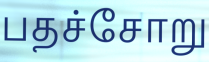
பதச்சோறு